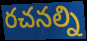
రచనల్ని